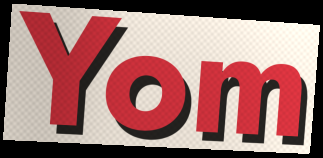
Yom